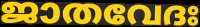
ജാതവേദഃ